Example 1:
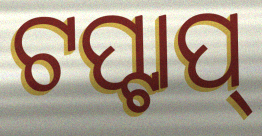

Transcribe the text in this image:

ଟପ୍ଟାପ୍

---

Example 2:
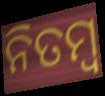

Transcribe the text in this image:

ନିତମ୍ବ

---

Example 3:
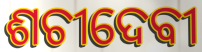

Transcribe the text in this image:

ଶଚୀଦେବୀ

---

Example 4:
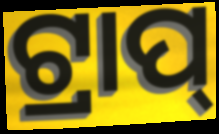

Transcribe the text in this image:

ଟ୍ରାପ୍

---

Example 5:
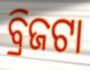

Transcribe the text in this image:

ବ୍ରିଜଟା